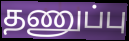
தணுப்பு